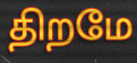
திறமே